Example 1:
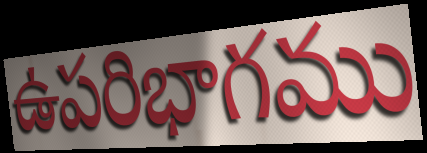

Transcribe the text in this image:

ఉపరిభాగము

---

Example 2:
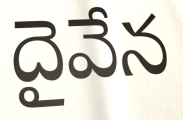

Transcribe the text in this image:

దైవేన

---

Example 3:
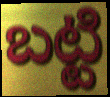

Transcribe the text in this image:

బట్టి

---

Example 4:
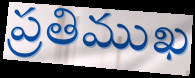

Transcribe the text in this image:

ప్రతిముఖ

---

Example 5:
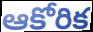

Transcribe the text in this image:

ఆకోరిక